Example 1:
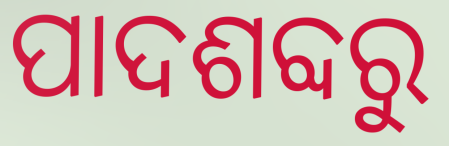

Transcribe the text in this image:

ପାଦଶବ୍ଦରୁ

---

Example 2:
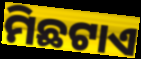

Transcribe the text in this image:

ମିଛଟାଏ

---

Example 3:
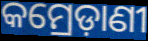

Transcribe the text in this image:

କମ୍ରେଡ଼ାଣୀ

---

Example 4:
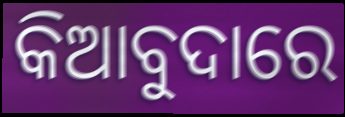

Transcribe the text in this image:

କିଆବୁଦାରେ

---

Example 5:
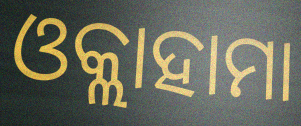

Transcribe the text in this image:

ଓକ୍ଲାହାମା